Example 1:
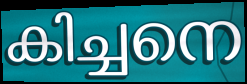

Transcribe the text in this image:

കിച്ചനെ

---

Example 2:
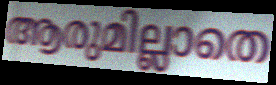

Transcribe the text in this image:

ആരുമില്ലാതെ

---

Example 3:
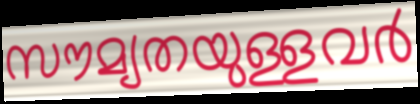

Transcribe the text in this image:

സൗമ്യതയുള്ളവർ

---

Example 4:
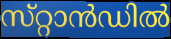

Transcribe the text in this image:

സ്‌റ്റാൻഡിൽ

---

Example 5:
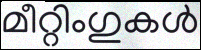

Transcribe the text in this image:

മീറ്റിംഗുകൾ